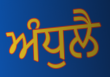
ਅੰਧੁਲੈ